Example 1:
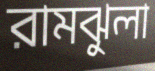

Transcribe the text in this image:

রামঝুলা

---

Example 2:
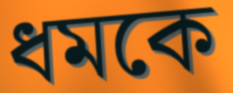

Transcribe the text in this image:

ধমকে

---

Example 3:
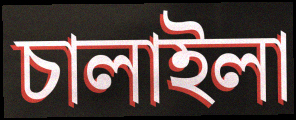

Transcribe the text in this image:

চালাইলা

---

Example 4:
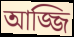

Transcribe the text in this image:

আজ্জি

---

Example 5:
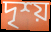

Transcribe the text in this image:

দৃশ্য়